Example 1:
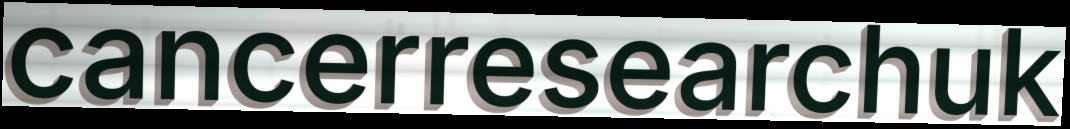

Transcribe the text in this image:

cancerresearchuk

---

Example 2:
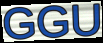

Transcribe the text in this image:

GGU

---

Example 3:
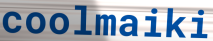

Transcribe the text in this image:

coolmaiki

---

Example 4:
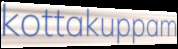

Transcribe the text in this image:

kottakuppam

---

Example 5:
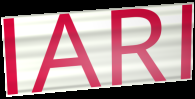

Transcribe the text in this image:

IARI